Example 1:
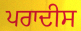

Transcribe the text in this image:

ਪਰਾਦੀਸ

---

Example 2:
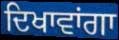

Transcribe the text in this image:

ਦਿਖਾਵਾਂਗਾ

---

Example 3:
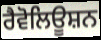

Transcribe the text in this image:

ਰੈਵੋਲਿਊਸ਼ਨ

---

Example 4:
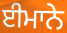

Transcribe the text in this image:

ਈਮਾਨੇ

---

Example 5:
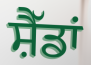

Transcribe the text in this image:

ਸ਼ੈੱਡਾਂ